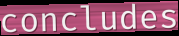
concludes